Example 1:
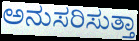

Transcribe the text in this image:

ಅನುಸರಿಸುತ್ತಾ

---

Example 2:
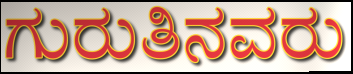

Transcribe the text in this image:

ಗುರುತಿನವರು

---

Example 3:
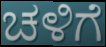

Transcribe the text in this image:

ಚಳಿಗೆ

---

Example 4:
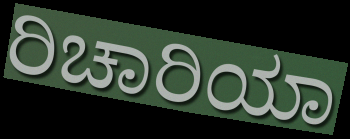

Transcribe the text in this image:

ರಿಚಾರಿಯಾ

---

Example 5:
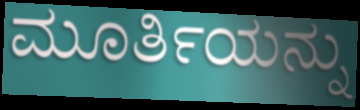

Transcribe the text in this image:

ಮೂರ್ತಿಯನ್ನು